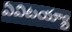
ఏవిటయ్యా